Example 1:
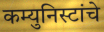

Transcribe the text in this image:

कम्युनिस्टांचे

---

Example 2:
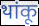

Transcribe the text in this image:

थांकू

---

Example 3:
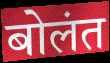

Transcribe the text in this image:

बोलंत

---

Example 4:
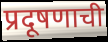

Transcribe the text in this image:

प्रदूषणाची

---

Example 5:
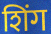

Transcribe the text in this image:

शिंग